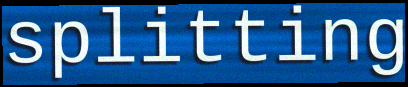
splitting